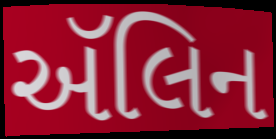
ઍલિન